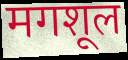
मगशूल